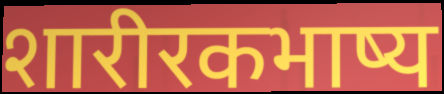
शारीरकभाष्य